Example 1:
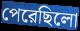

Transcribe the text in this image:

পেরেছিলো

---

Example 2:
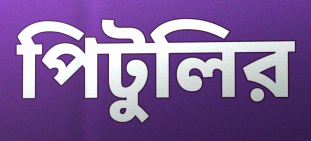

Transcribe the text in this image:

পিটুলির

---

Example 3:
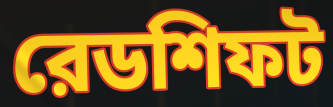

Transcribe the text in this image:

রেডশিফট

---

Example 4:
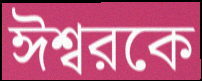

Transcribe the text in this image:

ঈশ্বরকে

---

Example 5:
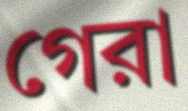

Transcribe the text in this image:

গেরা